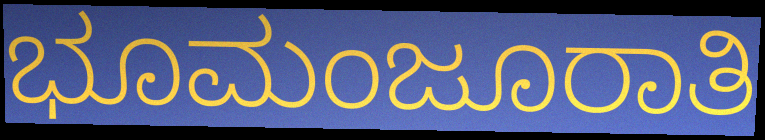
ಭೂಮಂಜೂರಾತಿ